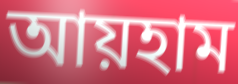
আয়হাম